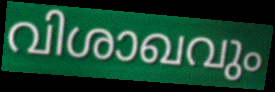
വിശാഖവും